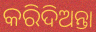
କରିଦିଅନ୍ତା